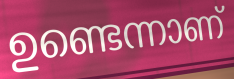
ഉണ്ടെന്നാണ്